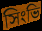
সিংভি